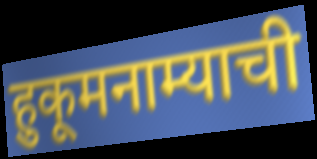
हुकूमनाम्याची